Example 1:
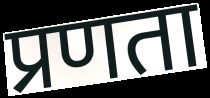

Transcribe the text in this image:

प्रणता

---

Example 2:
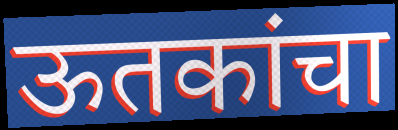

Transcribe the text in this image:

ऊतकांचा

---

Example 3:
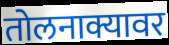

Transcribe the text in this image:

तोलनाक्यावर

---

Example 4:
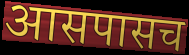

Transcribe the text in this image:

आसपासच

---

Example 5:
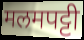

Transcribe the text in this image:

मलमपट्टी